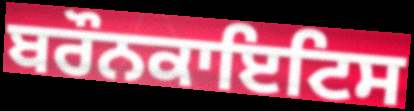
ਬਰੌਨਕਾਇਟਿਸ